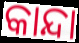
କାନ୍ଦା